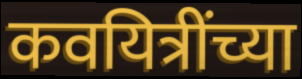
कवयित्रींच्या